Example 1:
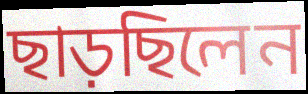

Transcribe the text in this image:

ছাড়ছিলেন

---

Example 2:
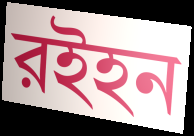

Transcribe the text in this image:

রইহন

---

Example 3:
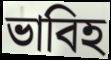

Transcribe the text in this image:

ভাবিহ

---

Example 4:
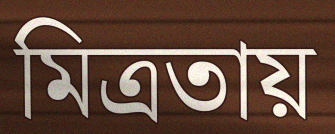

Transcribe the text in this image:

মিত্রতায়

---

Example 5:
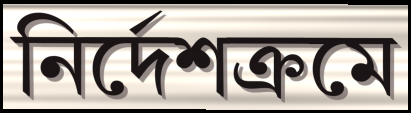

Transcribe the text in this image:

নির্দেশক্রমে